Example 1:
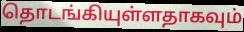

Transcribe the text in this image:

தொடங்கியுள்ளதாகவும்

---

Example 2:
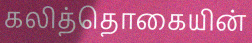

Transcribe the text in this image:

கலித்தொகையின்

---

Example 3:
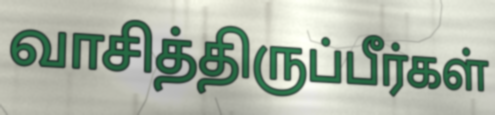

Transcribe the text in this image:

வாசித்திருப்பீர்கள்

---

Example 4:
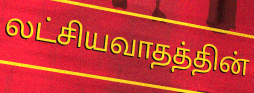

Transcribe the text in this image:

லட்சியவாதத்தின்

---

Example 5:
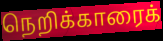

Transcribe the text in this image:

நெறிக்காரைக்